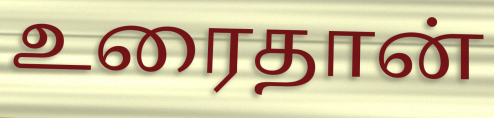
உரைதான்